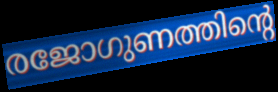
രജോഗുണത്തിന്റെ